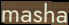
masha